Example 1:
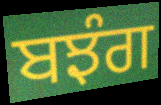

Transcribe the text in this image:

ਬਝੰਗ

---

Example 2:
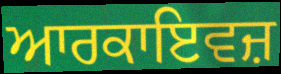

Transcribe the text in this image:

ਆਰਕਾਇਵਜ਼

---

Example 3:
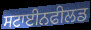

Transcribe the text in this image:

ਸਟਾਈਨਫੀਲਡ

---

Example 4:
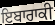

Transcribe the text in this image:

ਇਬਾਰਾਕੀ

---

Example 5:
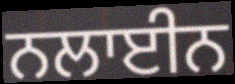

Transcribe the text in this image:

ਨਲਾਈਨ